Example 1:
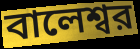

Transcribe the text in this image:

বালেশ্বর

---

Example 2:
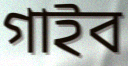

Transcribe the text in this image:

গাইব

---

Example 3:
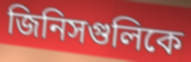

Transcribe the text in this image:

জিনিসগুলিকে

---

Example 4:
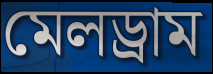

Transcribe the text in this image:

মেলড্রাম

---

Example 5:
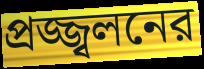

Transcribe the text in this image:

প্রজ্জ্বলনের